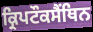
ਕ੍ਰਿਪਟੌਕਸੈਂਥਿਨ